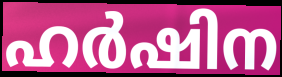
ഹർഷിന